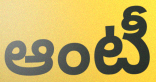
ఆంటీ